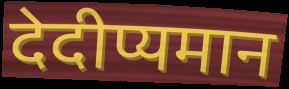
देदीप्यमान